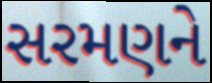
સરમણને